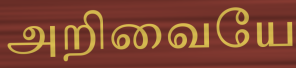
அறிவையே